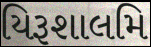
યિરૂશાલમિ